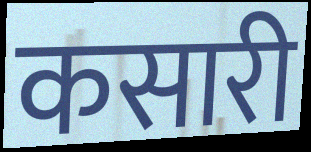
कसारी